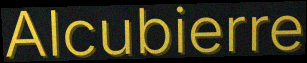
Alcubierre